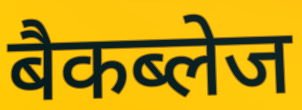
बैकब्लेज